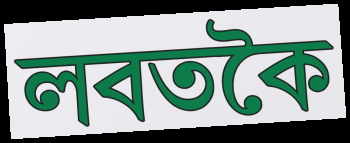
লবতকৈ